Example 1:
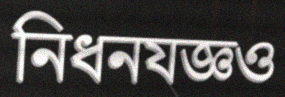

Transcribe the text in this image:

নিধনযজ্ঞও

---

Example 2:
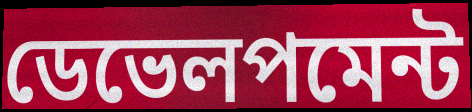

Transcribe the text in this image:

ডেভেলপমেন্ট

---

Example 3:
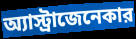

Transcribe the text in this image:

অ্যাস্ট্রাজেনেকার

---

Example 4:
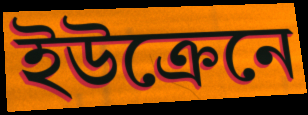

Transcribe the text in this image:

ইউক্রেনে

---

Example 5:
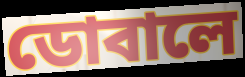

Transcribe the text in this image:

ডোবালে